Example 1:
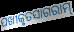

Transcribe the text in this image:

ପଖୀକୃତସାଗରାମ୍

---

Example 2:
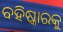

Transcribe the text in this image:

ବହିଷ୍କାରକୁ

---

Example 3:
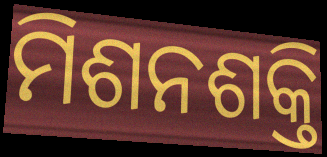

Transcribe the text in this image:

ମିଶନଶକ୍ତି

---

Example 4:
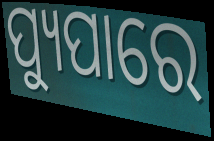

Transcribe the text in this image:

ପ୍ୟୁପାରେ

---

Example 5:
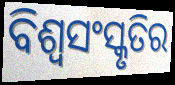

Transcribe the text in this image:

ବିଶ୍ୱସଂସ୍କୃତିର